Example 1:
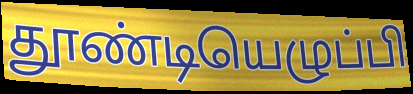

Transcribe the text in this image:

தூண்டியெழுப்பி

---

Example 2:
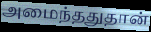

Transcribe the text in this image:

அமைந்ததுதான்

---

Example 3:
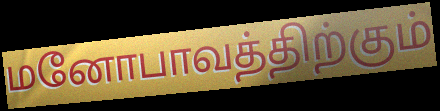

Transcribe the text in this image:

மனோபாவத்திற்கும்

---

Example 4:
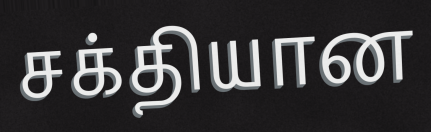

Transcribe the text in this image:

சக்தியான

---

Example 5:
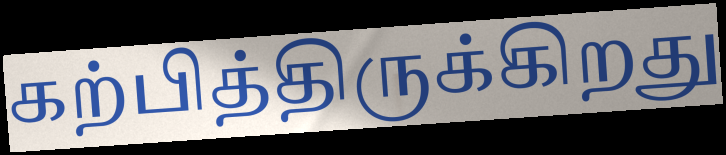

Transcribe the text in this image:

கற்பித்திருக்கிறது